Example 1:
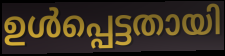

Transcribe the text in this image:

ഉൾപ്പെട്ടതായി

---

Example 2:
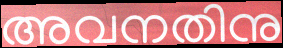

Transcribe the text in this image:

അവനതിനു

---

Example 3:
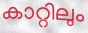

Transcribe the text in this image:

കാറ്റിലും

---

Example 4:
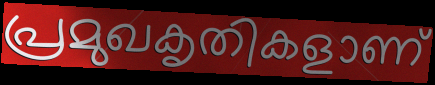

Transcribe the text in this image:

പ്രമുഖകൃതികളാണ്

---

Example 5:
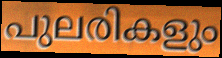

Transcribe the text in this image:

പുലരികളും